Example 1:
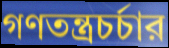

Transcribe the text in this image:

গণতন্ত্রচর্চার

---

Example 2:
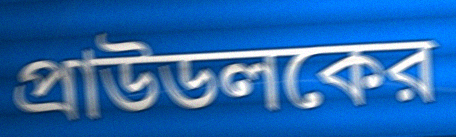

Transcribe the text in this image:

প্রাউডলকের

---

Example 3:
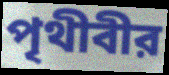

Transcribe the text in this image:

পৃথীবীর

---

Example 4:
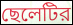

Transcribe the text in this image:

ছেলেটির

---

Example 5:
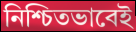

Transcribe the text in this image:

নিশ্চিতভাবেই